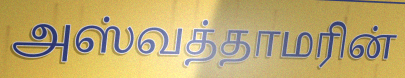
அஸ்வத்தாமரின்